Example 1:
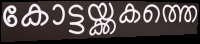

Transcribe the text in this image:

കോട്ടയ്ക്കകത്തെ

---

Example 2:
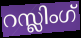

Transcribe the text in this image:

റസ്ലിംഗ്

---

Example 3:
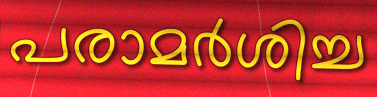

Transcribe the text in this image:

പരാമർശിച്ച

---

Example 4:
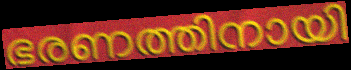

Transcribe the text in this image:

ഭരണത്തിനായി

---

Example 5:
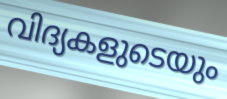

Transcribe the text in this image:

വിദ്യകളുടെയും